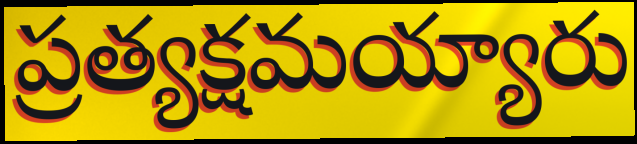
ప్రత్యక్షమయ్యారు